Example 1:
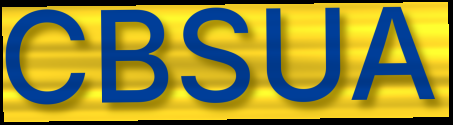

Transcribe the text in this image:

CBSUA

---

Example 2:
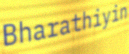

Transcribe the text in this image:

Bharathiyin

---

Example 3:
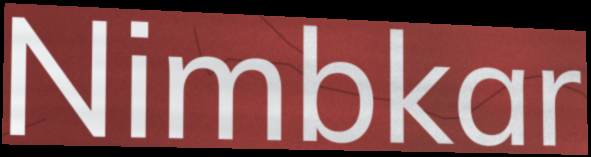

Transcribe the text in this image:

Nimbkar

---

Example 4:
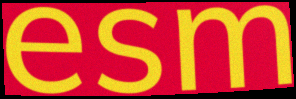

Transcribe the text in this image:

esm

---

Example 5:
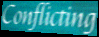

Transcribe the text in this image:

Conflicting